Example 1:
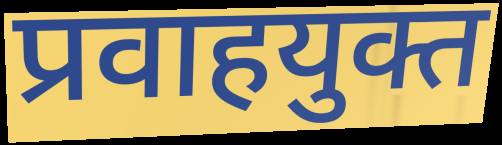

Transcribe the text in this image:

प्रवाहयुक्त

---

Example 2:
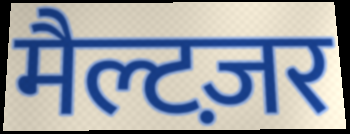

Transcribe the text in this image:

मैल्टज़र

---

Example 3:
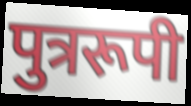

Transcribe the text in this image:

पुत्ररूपी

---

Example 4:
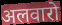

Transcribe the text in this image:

अलवारो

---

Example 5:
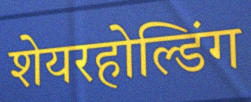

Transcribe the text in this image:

शेयरहोल्डिंग